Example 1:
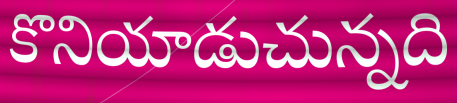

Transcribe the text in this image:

కొనియాడుచున్నది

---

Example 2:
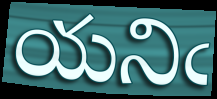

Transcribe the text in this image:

యనిఁ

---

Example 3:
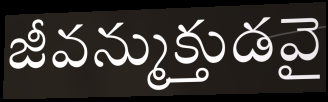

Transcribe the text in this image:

జీవన్ముక్తుడవై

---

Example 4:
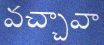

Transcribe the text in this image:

వచ్చావా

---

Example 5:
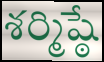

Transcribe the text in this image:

శర్మిష్ఠే